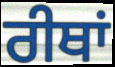
ਰੀਥਾਂ